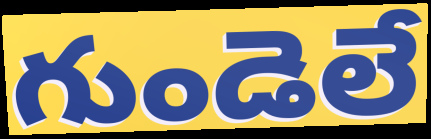
గుండెలే